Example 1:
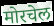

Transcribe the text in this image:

मोरचेल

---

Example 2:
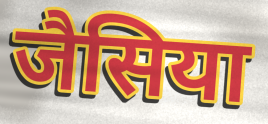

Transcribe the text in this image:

जैसिया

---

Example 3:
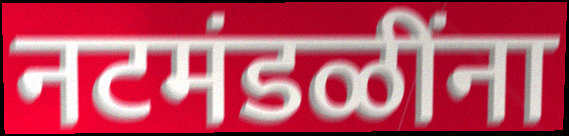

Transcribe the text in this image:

नटमंडळींना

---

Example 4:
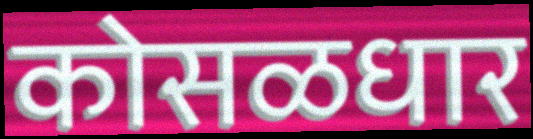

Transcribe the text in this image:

कोसळधार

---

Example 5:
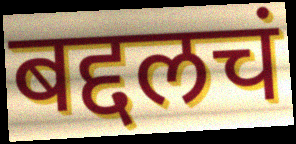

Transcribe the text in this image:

बद्दलचं